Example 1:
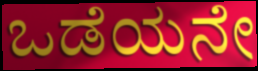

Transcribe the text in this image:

ಒಡೆಯನೇ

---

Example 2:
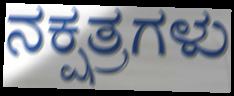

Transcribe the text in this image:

ನಕ್ಷತ್ರಗಳು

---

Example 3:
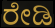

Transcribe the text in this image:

ರೇಡಿ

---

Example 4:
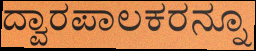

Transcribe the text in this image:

ದ್ವಾರಪಾಲಕರನ್ನೂ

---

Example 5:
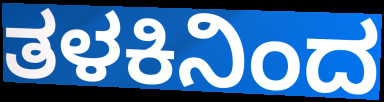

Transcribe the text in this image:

ತಳಕಿನಿಂದ